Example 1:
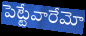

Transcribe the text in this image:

పెట్టేవారేమో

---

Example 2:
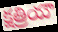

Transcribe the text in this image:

క్షత్రియౌ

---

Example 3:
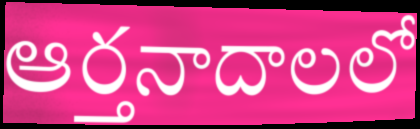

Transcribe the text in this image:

ఆర్తనాదాలలో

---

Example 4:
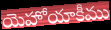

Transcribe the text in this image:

యెహోయాకీము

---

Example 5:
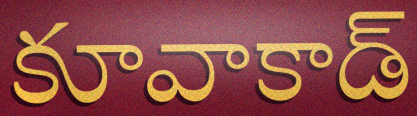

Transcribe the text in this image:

కూవాకాడ్